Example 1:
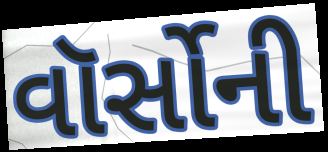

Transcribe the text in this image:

વૉર્સોની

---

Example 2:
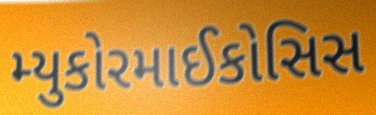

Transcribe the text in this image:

મ્યુકોરમાઈકોસિસ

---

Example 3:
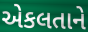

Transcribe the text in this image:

એકલતાને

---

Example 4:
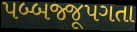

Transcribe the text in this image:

પબ્બજ્જૂપગતા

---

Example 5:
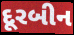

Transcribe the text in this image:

દૂરબીન